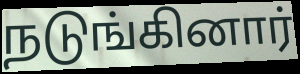
நடுங்கினார்